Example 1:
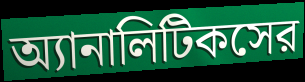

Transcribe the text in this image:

অ্যানালিটিকসের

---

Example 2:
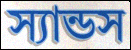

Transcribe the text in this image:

স্যান্ডস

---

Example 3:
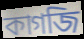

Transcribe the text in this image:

কাগজি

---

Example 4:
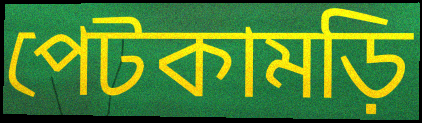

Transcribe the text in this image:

পেটকামড়ি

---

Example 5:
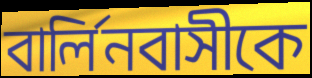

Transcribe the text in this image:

বার্লিনবাসীকে